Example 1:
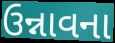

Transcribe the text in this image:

ઉન્નાવના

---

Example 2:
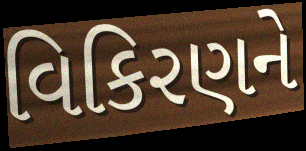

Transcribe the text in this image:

વિકિરણને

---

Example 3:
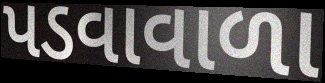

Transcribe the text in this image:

પડવાવાળા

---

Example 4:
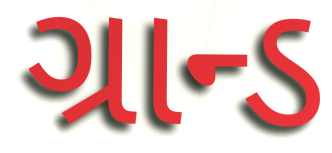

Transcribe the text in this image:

ગ્રાન્ડ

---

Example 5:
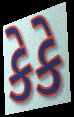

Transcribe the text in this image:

કેકે